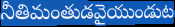
నీతిమంతుడవైయుండుట